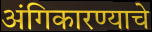
अंगिकारण्याचे